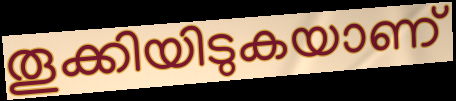
തൂക്കിയിടുകയാണ്